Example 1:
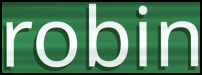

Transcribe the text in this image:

robin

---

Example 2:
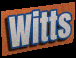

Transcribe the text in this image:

Witts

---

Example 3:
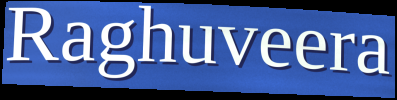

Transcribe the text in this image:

Raghuveera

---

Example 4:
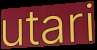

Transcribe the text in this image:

utari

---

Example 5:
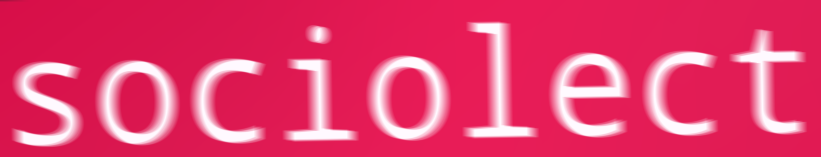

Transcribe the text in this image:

sociolect